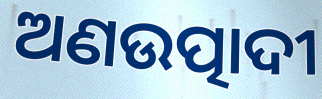
ଅଣଉତ୍ପାଦୀ